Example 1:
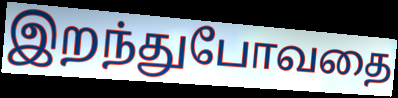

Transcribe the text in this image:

இறந்துபோவதை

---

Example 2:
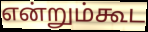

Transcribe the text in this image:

என்றும்கூட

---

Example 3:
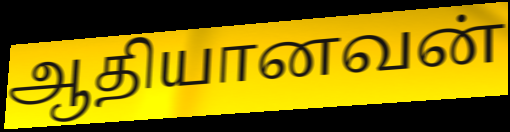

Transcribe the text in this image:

ஆதியானவன்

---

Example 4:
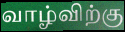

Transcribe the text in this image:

வாழ்விற்கு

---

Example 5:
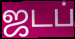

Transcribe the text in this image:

ஜடப்